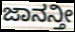
ಜಾನನ್ತೀ